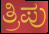
ತ್ರಿಪು